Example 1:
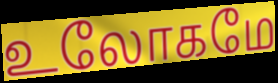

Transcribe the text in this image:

உலோகமே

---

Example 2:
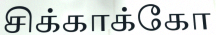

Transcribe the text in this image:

சிக்காக்கோ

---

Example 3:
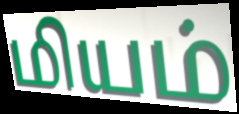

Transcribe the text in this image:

மியம்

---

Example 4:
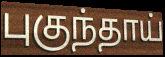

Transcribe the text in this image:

புகுந்தாய்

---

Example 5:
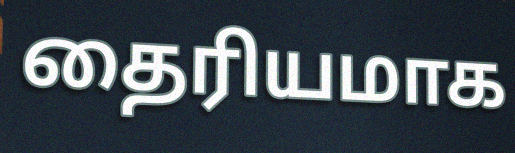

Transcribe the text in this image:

தைரியமாக